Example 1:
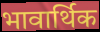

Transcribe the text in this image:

भावार्थिक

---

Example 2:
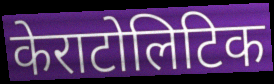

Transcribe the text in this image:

केराटोलिटिक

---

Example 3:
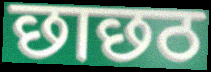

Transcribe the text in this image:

छाछठ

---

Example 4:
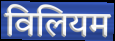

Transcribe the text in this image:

विलियम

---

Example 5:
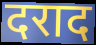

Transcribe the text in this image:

दराद